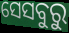
ସେସବୁରୁ